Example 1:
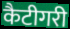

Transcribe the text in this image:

कैटीगरी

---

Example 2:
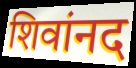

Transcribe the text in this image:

शिवांनद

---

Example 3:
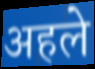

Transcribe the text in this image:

अहले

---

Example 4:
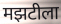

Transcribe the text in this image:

मझटीला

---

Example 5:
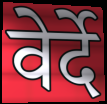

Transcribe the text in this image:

वेर्दे